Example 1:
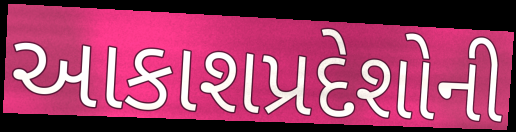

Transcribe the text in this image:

આકાશપ્રદેશોની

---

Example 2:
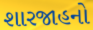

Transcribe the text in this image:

શારજાહનો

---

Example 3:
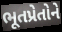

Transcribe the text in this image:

ભૂતપ્રેતોને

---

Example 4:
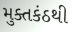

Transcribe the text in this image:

મુક્તકંઠથી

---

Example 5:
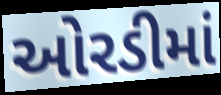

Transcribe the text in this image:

ઓરડીમાં